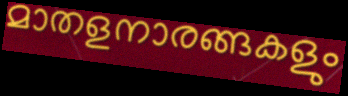
മാതളനാരങ്ങകളും